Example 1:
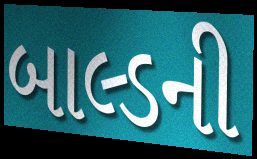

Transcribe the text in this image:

બાલ્ડની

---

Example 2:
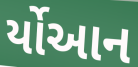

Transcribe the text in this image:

ર્યોઆન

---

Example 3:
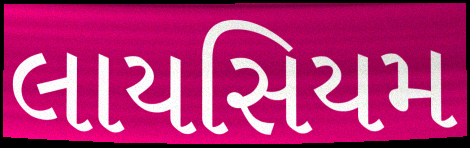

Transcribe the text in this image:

લાયસિયમ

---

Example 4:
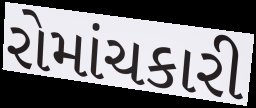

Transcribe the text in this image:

રોમાંચકારી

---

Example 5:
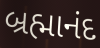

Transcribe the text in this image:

બ્રહ્માનંદ